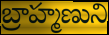
బ్రాహ్మణుని